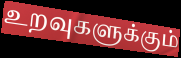
உறவுகளுக்கும்